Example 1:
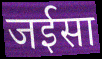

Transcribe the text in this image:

जईसा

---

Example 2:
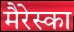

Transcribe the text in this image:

मैरेस्का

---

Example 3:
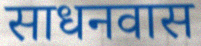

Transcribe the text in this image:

साधनवास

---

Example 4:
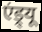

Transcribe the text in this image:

एंड्र्यू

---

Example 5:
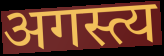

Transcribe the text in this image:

अगस्त्य